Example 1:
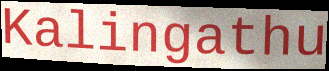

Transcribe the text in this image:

Kalingathu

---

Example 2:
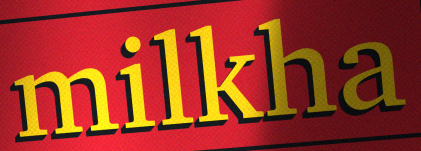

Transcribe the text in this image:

milkha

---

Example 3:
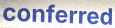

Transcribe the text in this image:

conferred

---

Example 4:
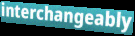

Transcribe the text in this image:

interchangeably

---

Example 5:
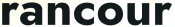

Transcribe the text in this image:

rancour